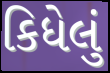
કિધેલું